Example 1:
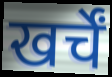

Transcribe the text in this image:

खर्चें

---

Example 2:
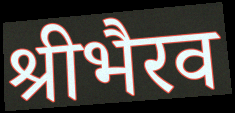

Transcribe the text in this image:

श्रीभैरव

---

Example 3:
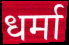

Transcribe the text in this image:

धर्मा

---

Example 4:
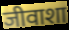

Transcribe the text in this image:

जीवाशा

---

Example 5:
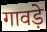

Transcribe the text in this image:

गावड़े